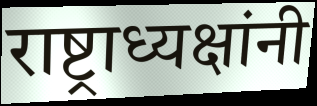
राष्ट्राध्यक्षांनी